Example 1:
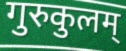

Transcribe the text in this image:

गुरुकुलम्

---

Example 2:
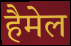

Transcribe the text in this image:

हैमेल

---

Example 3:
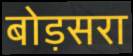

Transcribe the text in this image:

बोड़सरा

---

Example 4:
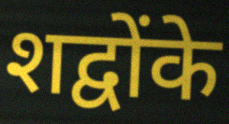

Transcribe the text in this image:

शद्वोंके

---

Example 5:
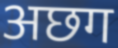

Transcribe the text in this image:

अछग